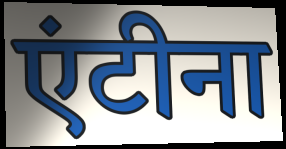
एंटीना